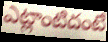
ఎట్లాంటిదంటే